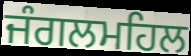
ਜੰਗਲਮਹਿਲ